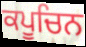
ਕਪੂਚਿਨ